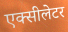
एक्सीलेटर